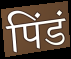
पिंडं